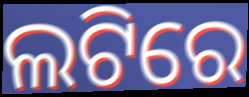
ଲଟିରେ